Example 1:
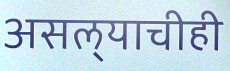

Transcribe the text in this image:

असल्याचीही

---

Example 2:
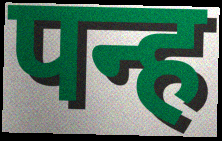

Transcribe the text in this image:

पन्ह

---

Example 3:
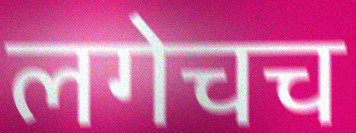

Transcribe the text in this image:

लगेचच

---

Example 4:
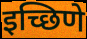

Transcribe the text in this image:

इच्छिणे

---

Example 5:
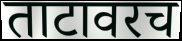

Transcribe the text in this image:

ताटावरच